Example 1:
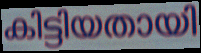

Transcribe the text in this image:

കിട്ടിയതായി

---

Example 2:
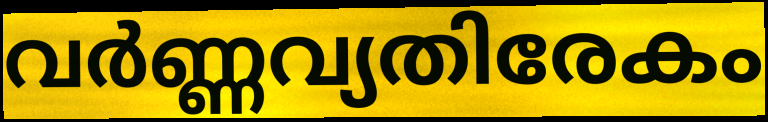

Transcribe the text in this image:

വർണ്ണവ്യതിരേകം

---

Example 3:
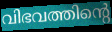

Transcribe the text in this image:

വിഭവത്തിന്റെ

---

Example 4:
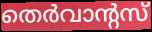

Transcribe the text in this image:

തെർവാന്റസ്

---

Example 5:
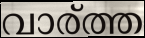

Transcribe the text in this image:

വാര്ത്ത